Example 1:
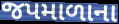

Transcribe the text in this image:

જપમાળાના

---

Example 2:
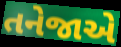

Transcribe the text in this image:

તનેજાએ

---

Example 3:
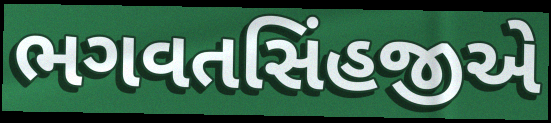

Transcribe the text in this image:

ભગવતસિંહજીએ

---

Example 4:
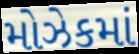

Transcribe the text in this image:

મોઝેકમાં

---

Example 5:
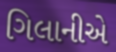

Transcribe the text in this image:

ગિલાનીએ